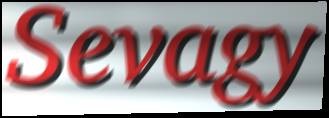
Sevagy